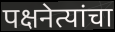
पक्षनेत्यांचा